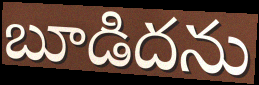
బూడిదను